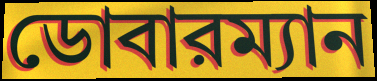
ডোবারম্যান